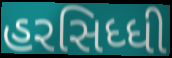
હરસિધ્ધી